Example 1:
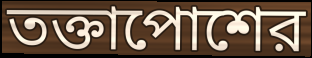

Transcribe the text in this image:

তক্তাপোশের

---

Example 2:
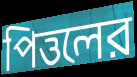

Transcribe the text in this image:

পিত্তলের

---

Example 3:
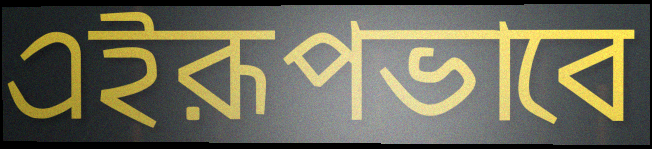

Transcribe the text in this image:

এইরূপভাবে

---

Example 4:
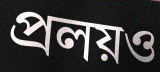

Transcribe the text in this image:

প্রলয়ও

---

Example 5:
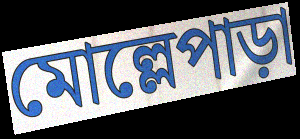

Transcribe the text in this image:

মোল্লেপাড়া